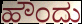
ಹೌಂದು